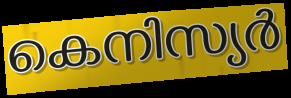
കെനിസ്യർ